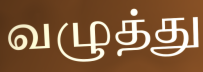
வழுத்து